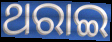
ଥରାଇ